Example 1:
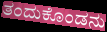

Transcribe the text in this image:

ತಂದುಕೊಂಡನು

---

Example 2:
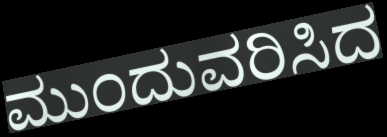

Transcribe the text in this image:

ಮುಂದುವರಿಸಿದ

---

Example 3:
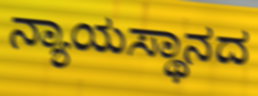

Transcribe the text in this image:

ನ್ಯಾಯಸ್ಥಾನದ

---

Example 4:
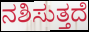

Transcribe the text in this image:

ನಶಿಸುತ್ತದೆ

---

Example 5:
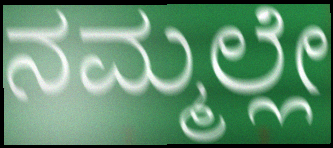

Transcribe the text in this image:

ನಮ್ಮಲ್ಲೇ